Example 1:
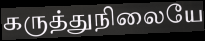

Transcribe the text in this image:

கருத்துநிலையே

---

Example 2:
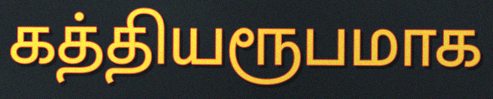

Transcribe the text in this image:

கத்தியரூபமாக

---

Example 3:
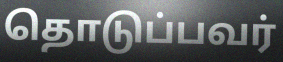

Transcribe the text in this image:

தொடுப்பவர்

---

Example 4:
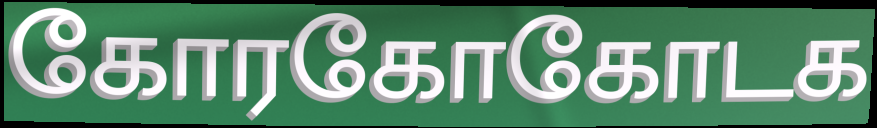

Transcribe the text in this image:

கோரகோகோடக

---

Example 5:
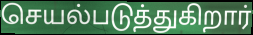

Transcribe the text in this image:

செயல்படுத்துகிறார்